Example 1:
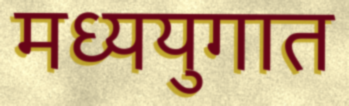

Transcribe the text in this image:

मध्ययुगात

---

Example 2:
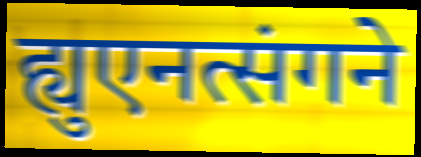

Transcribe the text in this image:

ह्युएनत्संगने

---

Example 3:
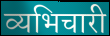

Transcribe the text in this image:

व्यभिचारी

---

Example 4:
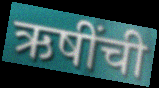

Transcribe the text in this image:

ऋषींची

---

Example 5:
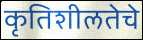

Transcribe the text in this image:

कृतिशीलतेचे